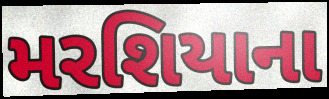
મરશિયાના